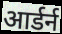
आर्डर्न